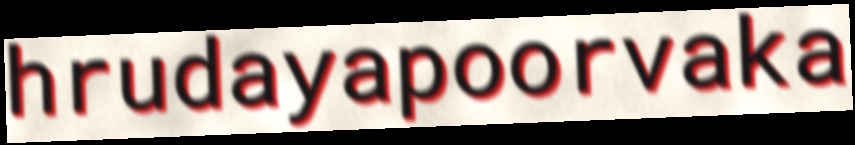
hrudayapoorvaka